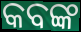
କବଙ୍କ